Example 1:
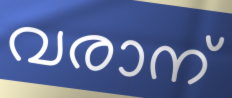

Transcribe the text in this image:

വരാന്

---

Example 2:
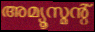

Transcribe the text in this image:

അമ്യൂസ്മന്റ്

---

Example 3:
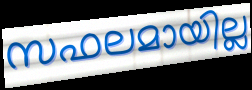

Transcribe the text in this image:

സഫലമായില്ല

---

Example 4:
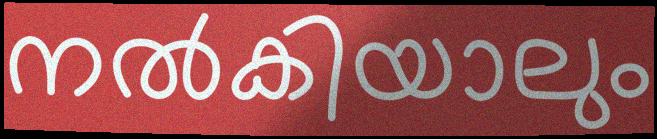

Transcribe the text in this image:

നൽകിയാലും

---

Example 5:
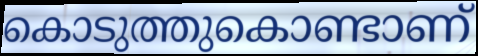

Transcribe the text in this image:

കൊടുത്തുകൊണ്ടാണ്